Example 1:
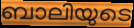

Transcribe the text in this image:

ബാലിയുടെ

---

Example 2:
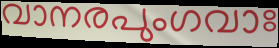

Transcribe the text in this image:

വാനരപുംഗവാഃ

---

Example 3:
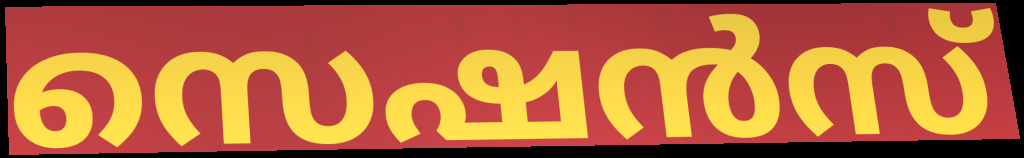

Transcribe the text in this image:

സെഷൻസ്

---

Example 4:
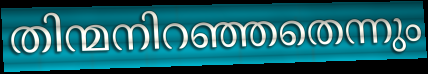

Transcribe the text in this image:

തിന്മനിറഞ്ഞതെന്നും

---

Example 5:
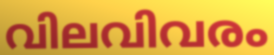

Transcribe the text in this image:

വിലവിവരം